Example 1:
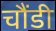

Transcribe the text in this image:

चौंडी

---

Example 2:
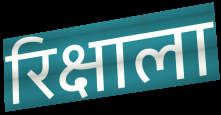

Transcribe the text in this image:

रिक्षाला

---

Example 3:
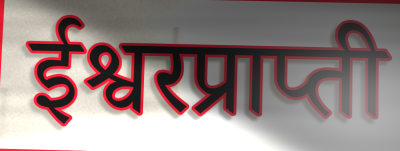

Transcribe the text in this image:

ईश्वरप्राप्ती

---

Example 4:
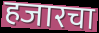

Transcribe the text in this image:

हजारचा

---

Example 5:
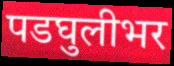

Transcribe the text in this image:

पडघुलीभर